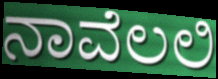
ನಾವೆಲಲಿ